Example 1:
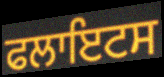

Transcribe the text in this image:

ਫਲਾਇਟਸ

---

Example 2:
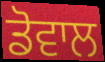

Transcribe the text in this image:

ਡੋਵਾਲ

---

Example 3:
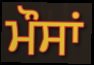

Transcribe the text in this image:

ਮੌਸਾਂ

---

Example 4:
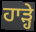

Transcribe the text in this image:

ਹਾੜ੍ਹੇ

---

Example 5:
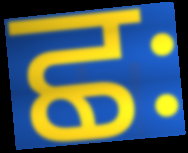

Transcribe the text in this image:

ਛਃ